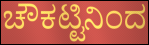
ಚೌಕಟ್ಟಿನಿಂದ